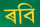
ৰবি